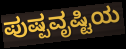
ಪುಷ್ಪವೃಷ್ಟಿಯ